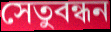
সেতুবন্ধন